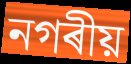
নগৰীয়